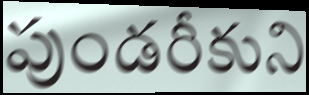
పుండరీకుని